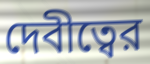
দেবীত্বের